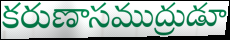
కరుణాసముద్రుడూ